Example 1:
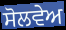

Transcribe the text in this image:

ਸੋਲਵੇਅ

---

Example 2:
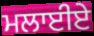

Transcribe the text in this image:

ਮਲਾਈਏ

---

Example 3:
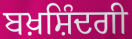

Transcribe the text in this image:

ਬਖ਼ਸ਼ਿੰਦਗੀ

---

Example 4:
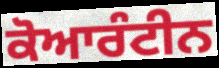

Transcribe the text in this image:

ਕੋਆਰੰਟੀਨ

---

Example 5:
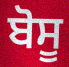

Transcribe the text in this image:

ਬੋਸੂ